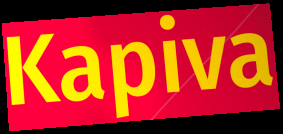
Kapiva